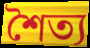
শৈত্য